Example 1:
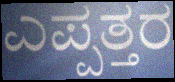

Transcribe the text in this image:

ಎಪ್ಪತ್ತರ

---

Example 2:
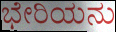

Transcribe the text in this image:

ಭೇರಿಯನು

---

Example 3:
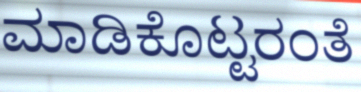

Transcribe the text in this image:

ಮಾಡಿಕೊಟ್ಟರಂತೆ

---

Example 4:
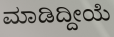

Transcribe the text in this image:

ಮಾಡಿದ್ದೀಯೆ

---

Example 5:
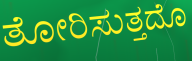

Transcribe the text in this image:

ತೋರಿಸುತ್ತದೊ